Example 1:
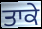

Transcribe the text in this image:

ਤਾਕੇ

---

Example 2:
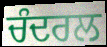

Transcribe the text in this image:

ਚੰਦਰਲ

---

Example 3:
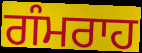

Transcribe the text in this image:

ਗੰਮਰਾਹ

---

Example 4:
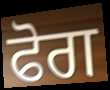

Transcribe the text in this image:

ਫੋਗ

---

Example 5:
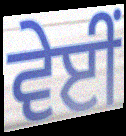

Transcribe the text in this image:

ਵੇਈਂ